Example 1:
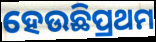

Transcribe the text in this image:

ହେଉଛିପ୍ରଥମ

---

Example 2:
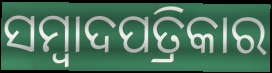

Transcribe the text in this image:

ସମ୍ବାଦପତ୍ରିକାର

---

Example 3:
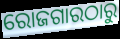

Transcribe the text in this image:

ରୋଜଗାରଠାରୁ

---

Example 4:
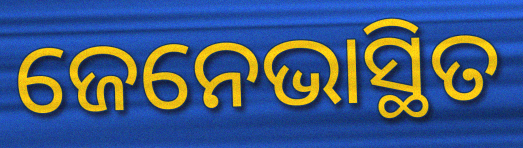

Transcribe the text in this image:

ଜେନେଭାସ୍ଥିତ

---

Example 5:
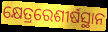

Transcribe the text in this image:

କ୍ଷେତ୍ରରେଶୀର୍ଷସ୍ଥାନ